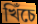
খিঁচে